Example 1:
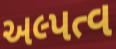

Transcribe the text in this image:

અલ્પત્વ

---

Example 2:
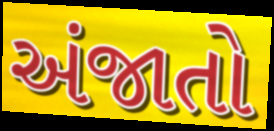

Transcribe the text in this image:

અંજાતો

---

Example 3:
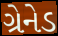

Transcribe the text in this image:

ગ્રેનેડ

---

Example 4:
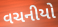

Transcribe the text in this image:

વચનીયો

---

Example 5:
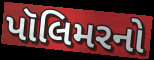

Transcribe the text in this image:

પૉલિમરનો